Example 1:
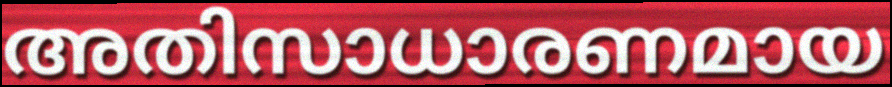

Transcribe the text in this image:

അതിസാധാരണമായ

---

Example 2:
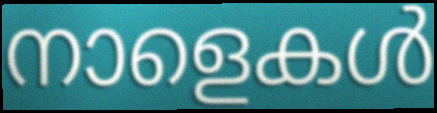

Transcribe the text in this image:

നാളെകൾ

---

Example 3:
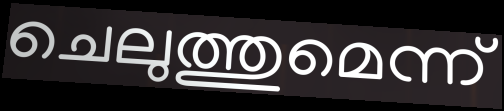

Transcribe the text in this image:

ചെലുത്തുമെന്ന്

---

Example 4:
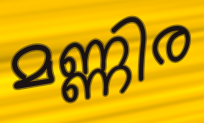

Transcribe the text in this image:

മണ്ണിര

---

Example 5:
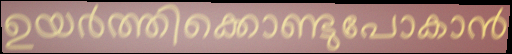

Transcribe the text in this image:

ഉയർത്തിക്കൊണ്ടുപോകാൻ